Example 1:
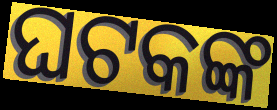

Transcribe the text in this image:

ଘଟକଙ୍କ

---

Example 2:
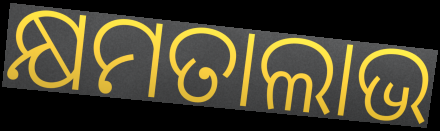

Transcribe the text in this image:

କ୍ଷମତାଲାଭ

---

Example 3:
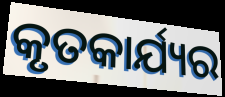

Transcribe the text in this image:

କୃତକାର୍ଯ୍ୟର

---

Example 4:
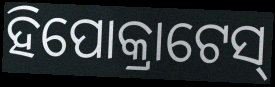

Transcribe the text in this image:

ହିପୋକ୍ରାଟେସ୍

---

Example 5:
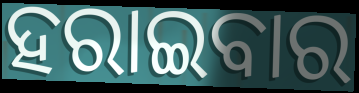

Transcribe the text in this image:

ହରାଇବାର